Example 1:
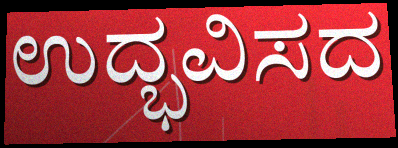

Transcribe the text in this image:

ಉದ್ಭವಿಸದ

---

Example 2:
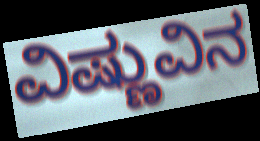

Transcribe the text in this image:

ವಿಷ್ಣುವಿನ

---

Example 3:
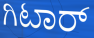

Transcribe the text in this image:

ಗಿಟಾರ್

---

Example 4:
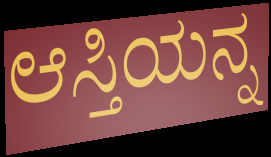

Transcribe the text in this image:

ಆಸ್ತಿಯನ್ನ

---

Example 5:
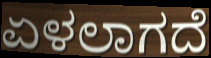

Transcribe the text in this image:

ಏಳಲಾಗದೆ